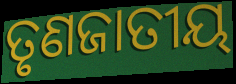
ତୃଣଜାତୀୟ